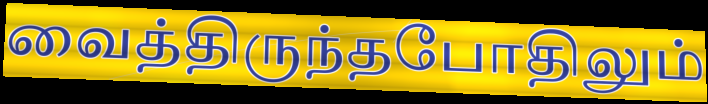
வைத்திருந்தபோதிலும்